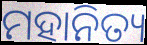
ମହାନିତ୍ୟ